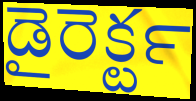
డైరెక్టర్‍